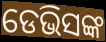
ଡେଭିସଙ୍କ